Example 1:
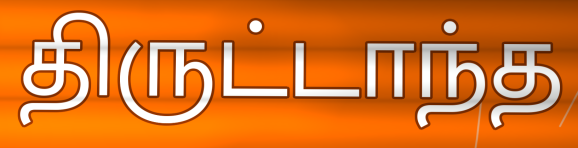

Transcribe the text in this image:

திருட்டாந்த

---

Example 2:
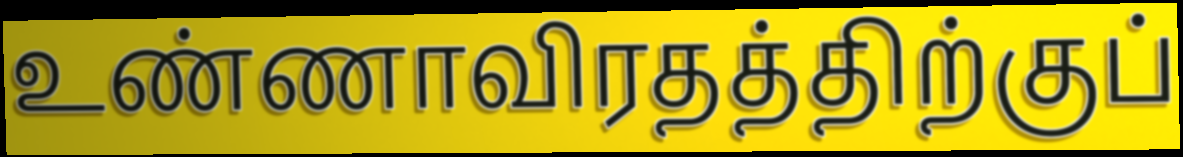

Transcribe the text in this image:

உண்ணாவிரதத்திற்குப்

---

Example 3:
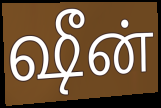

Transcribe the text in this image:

ஷீன்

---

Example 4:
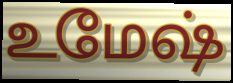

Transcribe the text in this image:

உமேஷ்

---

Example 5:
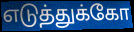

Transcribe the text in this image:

எடுத்துக்கோ